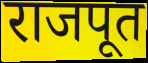
राजपूत